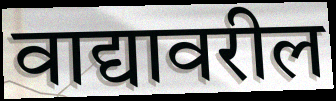
वाद्यावरील